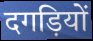
दगड़ियों